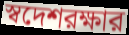
স্বদেশরক্ষার